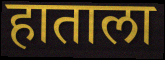
हाताला